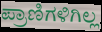
ಪ್ರಾಣಿಗಳಿಗಿಲ್ಲ